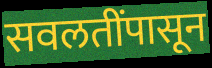
सवलतींपासून